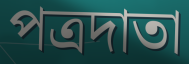
পত্রদাতা